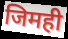
जिमही